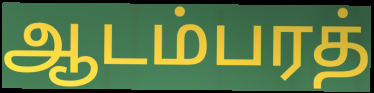
ஆடம்பரத்